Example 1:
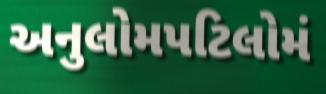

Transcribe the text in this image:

અનુલોમપટિલોમં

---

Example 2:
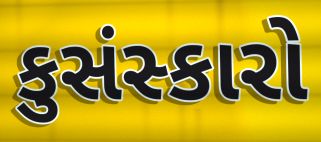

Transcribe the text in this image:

કુસંસ્કારો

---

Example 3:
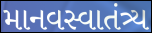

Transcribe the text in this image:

માનવસ્વાતંત્ર્ય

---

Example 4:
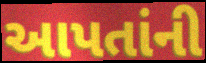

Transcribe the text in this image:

આપતાંની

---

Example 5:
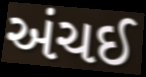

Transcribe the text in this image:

અંચઈ